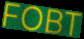
FOBT